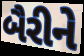
બૈરીને